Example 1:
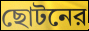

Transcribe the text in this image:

ছোটনের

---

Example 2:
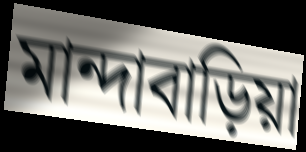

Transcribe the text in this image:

মান্দাবাড়িয়া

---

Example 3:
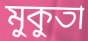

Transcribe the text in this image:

মুকুতা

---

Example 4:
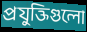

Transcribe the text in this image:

প্রযুক্তিগুলো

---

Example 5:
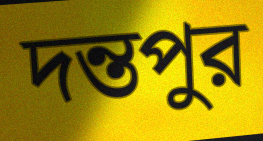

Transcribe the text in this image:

দন্তপুর